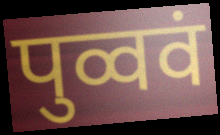
पुव्ववं